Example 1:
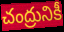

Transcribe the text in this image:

చంద్రునికీ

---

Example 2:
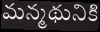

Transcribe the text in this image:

మన్మథునికి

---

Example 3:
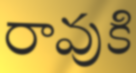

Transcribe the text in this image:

రావుకి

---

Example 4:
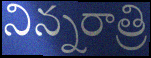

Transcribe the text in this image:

నిన్నరాత్రి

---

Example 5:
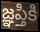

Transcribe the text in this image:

జ్ఞప్తికి